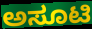
ಅಸೂಟಿ